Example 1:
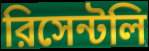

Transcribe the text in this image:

রিসেন্টলি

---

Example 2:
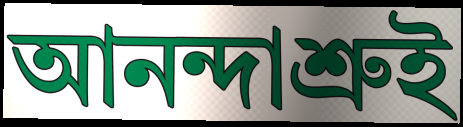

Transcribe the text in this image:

আনন্দাশ্রুই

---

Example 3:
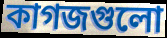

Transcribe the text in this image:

কাগজগুলো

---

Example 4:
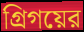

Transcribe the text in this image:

গ্রিগয়ের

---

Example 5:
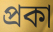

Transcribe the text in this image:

প্রকা